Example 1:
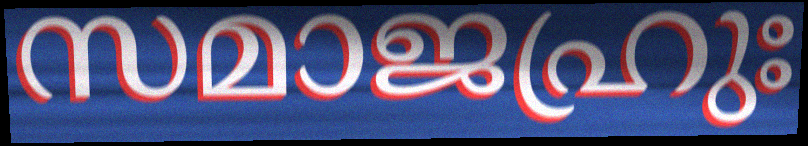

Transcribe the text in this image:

സമാജഹ്രുഃ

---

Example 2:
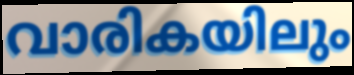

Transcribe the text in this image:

വാരികയിലും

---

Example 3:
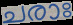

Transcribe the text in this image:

ചരാഃ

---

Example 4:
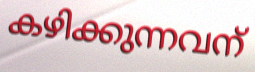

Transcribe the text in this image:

കഴിക്കുന്നവന്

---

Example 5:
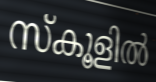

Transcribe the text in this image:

സ്കൂളിൽ